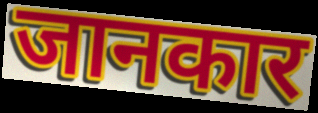
जानकार